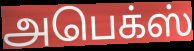
அபெக்ஸ்